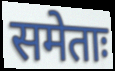
समेताः